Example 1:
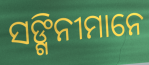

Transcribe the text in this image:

ସଙ୍ଗିନୀମାନେ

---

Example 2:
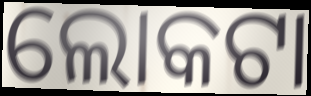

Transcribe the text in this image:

ଲୋକଟା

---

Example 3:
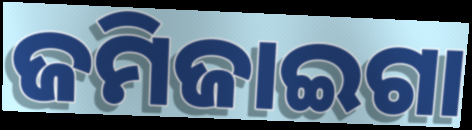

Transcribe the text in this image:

ଜମିଜାଇଗା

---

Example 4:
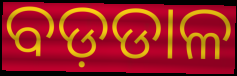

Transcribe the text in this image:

ବଡ଼ଡାଳ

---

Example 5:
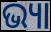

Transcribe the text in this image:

ଭ୍ୟା